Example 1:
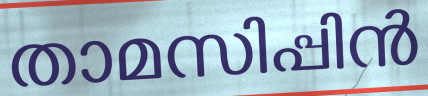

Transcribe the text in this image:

താമസിപ്പിൻ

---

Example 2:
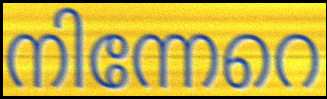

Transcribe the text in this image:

നിന്നേറെ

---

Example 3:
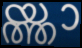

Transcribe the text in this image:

യ്ത്താ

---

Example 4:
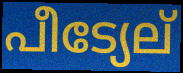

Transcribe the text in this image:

പീട്യേല്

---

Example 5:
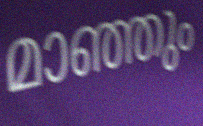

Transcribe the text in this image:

മാഞ്ഞും